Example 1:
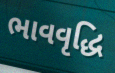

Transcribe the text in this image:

ભાવવૃદ્ધિ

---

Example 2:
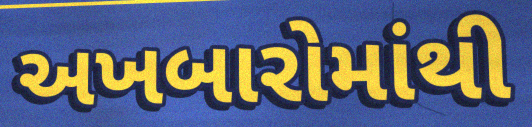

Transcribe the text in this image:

અખબારોમાંથી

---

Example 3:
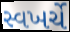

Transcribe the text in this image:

સ્વખર્ચે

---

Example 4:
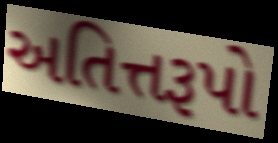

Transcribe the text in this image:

અતિત્તરૂપો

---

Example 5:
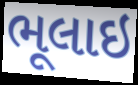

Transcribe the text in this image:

ભૂલાઇ